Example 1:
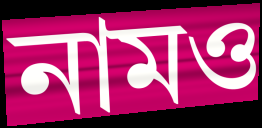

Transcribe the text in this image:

নামও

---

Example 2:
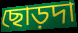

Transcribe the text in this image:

ছোড়দা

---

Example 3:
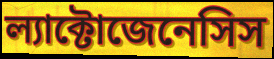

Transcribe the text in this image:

ল্যাক্টোজেনেসিস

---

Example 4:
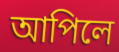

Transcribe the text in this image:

আপিলে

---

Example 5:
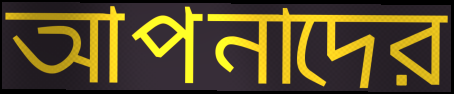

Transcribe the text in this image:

আপনাদের